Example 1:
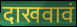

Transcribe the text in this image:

दाखवावं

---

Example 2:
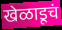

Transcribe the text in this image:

खेळाडूचं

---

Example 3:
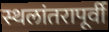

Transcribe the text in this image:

स्थलांतरापूर्वी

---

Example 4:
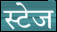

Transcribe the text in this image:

स्टेज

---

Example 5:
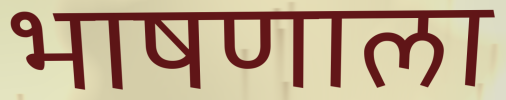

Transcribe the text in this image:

भाषणाला